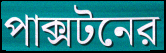
পাক্সটনের